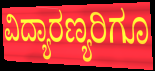
ವಿದ್ಯಾರಣ್ಯರಿಗೂ